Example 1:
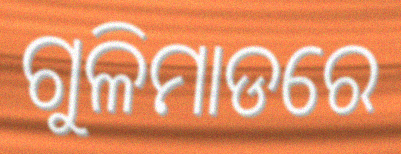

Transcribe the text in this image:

ଗୁଳିମାଡରେ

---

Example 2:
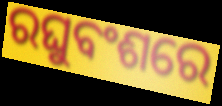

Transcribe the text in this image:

ରଘୁବଂଶରେ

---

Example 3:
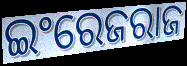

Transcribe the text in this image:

ଇଂରେଜରାଜ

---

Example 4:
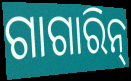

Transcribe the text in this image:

ଗାଗାରିନ୍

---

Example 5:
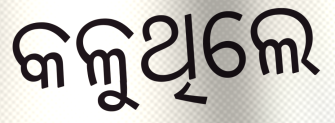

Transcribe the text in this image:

କଳୁଥିଲେ